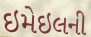
ઇમેઇલની